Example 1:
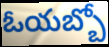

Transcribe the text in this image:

ఓయబ్బో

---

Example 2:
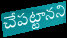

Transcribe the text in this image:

చేపట్టానని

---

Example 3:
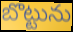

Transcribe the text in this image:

బొట్టును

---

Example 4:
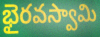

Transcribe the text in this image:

భైరవస్వామి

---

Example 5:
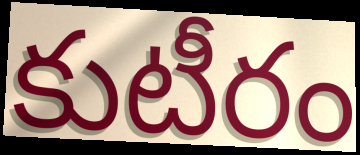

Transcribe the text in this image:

కుటీరం